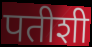
पतीशी